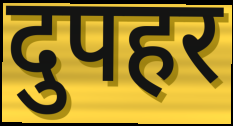
दुपहर